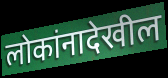
लोकांनादेखील